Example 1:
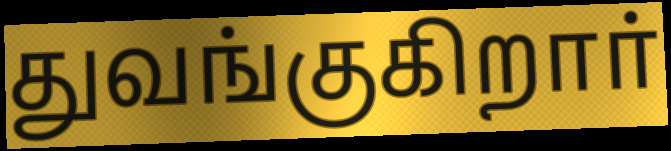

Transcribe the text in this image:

துவங்குகிறார்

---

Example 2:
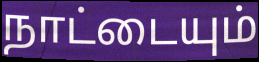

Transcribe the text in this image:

நாட்டையும்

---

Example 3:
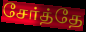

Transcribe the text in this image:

சேர்த்தே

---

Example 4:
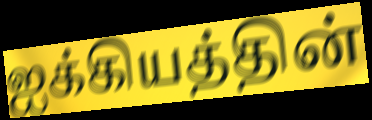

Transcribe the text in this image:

ஐக்கியத்தின்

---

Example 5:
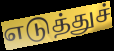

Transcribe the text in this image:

எடுத்துச்